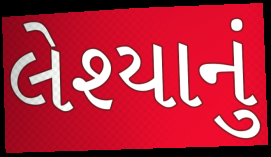
લેશ્યાનું